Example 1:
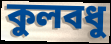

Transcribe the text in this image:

কুলবধু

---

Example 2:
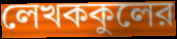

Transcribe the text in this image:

লেখককুলের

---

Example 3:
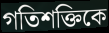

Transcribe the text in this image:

গতিশক্তিকে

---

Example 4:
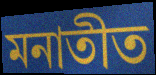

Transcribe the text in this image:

মনাতীত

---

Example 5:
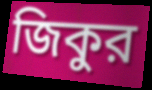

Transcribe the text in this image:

জিকুর